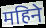
महिने